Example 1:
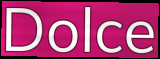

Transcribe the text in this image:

Dolce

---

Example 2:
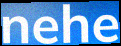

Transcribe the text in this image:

nehe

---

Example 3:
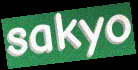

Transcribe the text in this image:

sakyo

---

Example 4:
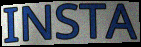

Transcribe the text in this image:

INSTA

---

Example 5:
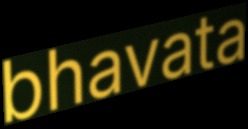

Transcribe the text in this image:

bhavata